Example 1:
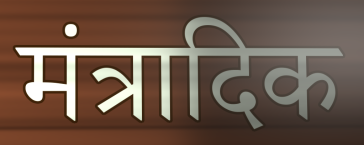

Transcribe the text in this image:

मंत्रादिक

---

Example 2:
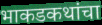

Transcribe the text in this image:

भाकडकथांचा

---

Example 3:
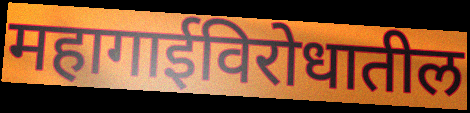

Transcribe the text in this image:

महागाईविरोधातील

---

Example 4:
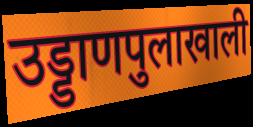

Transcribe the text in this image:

उड्डाणपुलाखाली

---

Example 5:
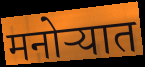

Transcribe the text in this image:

मनोऱ्यात